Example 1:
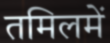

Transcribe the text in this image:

तमिलमें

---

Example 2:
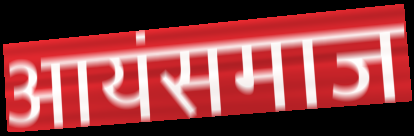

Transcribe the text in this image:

आयंसमाज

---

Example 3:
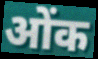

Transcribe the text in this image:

ओंक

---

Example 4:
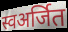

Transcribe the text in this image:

स्वअर्जित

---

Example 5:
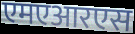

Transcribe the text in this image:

एमएआरएस